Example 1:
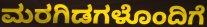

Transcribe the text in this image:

ಮರಗಿಡಗಳೊಂದಿಗೆ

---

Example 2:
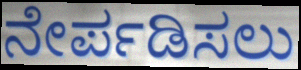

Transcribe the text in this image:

ನೇರ್ಪಡಿಸಲು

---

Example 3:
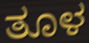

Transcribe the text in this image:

ತೂಳ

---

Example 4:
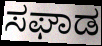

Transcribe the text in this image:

ಸಘಾಡ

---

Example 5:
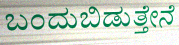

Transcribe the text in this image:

ಬಂದುಬಿಡುತ್ತೇನೆ